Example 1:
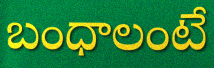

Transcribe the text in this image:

బంధాలంటే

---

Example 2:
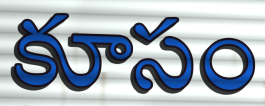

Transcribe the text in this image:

కూసం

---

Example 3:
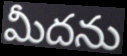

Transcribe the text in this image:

మీదను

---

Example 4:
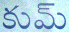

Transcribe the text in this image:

కుమ్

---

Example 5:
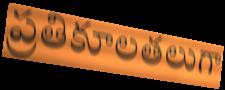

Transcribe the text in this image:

ప్రతికూలతలుగా